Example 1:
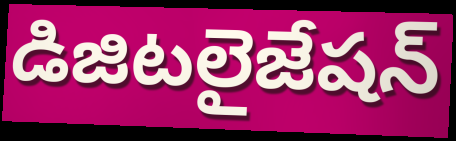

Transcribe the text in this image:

డిజిటలైజేషన్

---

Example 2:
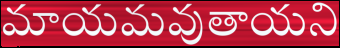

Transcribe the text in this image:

మాయమవుతాయని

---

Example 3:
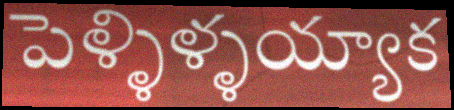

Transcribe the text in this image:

పెళ్ళిళ్ళయ్యాక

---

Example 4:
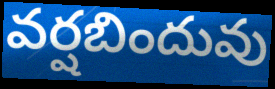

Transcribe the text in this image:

వర్షబిందువు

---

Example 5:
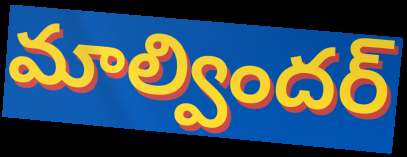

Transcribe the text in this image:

మాల్విందర్